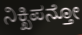
ನಿಕ್ಖಿಪನ್ತೋ